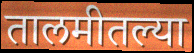
तालमीतल्या